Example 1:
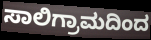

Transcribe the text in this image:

ಸಾಲಿಗ್ರಾಮದಿಂದ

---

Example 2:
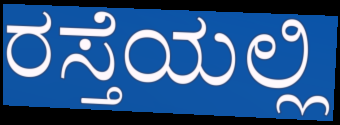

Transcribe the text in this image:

ರಸ್ತೆಯಲ್ಲಿ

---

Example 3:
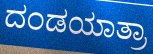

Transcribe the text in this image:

ದಂಡಯಾತ್ರಾ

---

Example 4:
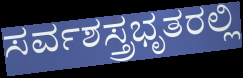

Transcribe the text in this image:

ಸರ್ವಶಸ್ತ್ರಭೃತರಲ್ಲಿ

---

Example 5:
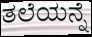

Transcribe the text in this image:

ತಲೆಯನ್ನೆ